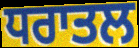
ਧਰਾਤਲ